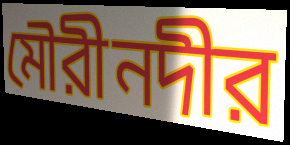
মৌরীনদীর